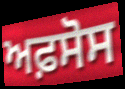
ਅਫ਼ਸੋਸ